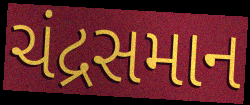
ચંદ્રસમાન